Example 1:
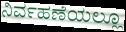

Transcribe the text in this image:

ನಿರ್ವಹಣೆಯಲ್ಲೂ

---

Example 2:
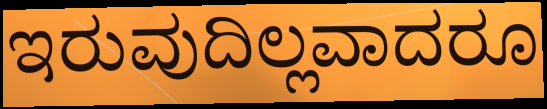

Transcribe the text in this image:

ಇರುವುದಿಲ್ಲವಾದರೂ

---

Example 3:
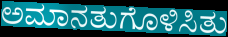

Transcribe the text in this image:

ಅಮಾನತುಗೊಳಿಸಿತು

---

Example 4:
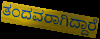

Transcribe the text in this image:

ತಂದವರಾಗಿದ್ದಾರೆ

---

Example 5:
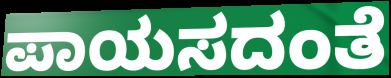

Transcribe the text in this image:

ಪಾಯಸದಂತೆ